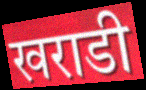
खराडी